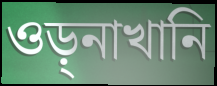
ওড়্নাখানি